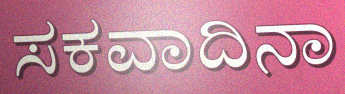
ಸಕವಾದಿನಾ